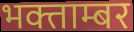
भक्ताम्बर